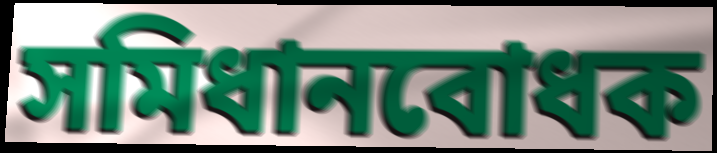
সমিধানবোধক